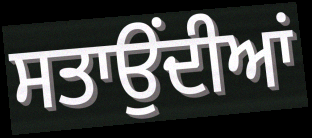
ਸਤਾਉਂਦੀਆਂ